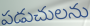
పడుచులను